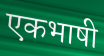
एकभाषी